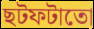
ছটফটাতো